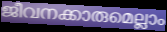
ജീവനക്കാരുമെല്ലാം